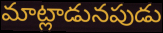
మాట్లాడునపుడు